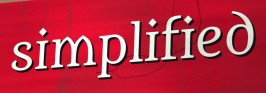
simplified